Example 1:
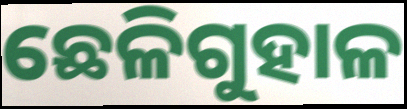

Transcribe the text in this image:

ଛେଳିଗୁହାଳ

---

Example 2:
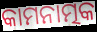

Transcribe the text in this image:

କାମନାତ୍ମକ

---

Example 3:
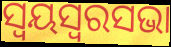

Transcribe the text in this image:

ସ୍ୱୟସ୍ୱରସଭା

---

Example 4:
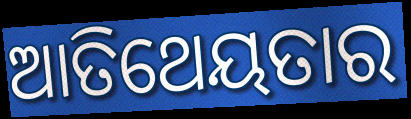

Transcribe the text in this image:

ଆତିଥେୟତାର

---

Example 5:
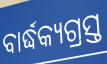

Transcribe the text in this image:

ବାର୍ଦ୍ଧକ୍ୟଗ୍ରସ୍ତ